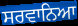
ਸਰਵਾਨਿਆ